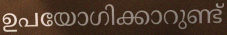
ഉപയോഗിക്കാറുണ്ട്